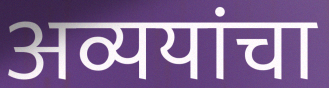
अव्ययांचा